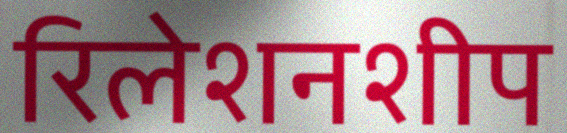
रिलेशनशीप